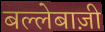
बल्‍लेबाज़ी